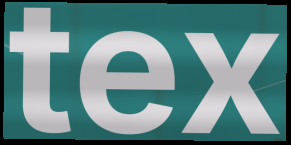
tex